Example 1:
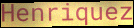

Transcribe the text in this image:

Henriquez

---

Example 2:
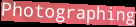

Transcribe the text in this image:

Photographing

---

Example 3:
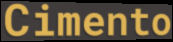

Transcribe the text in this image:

Cimento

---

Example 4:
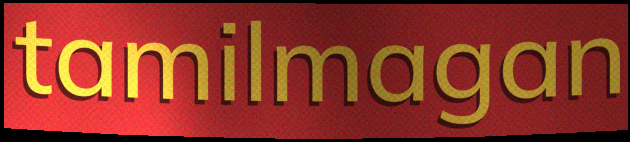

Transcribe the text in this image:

tamilmagan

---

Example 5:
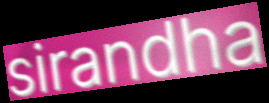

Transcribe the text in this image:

sirandha